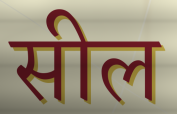
सील